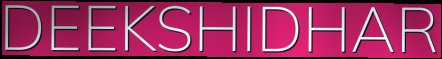
DEEKSHIDHAR